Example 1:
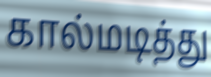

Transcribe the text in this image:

கால்மடித்து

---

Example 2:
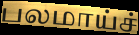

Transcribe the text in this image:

பலமாய்ச்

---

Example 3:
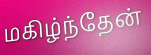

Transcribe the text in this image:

மகிழ்ந்தேன்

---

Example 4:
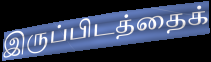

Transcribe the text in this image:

இருப்பிடத்தைக்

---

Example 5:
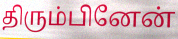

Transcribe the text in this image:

திரும்பினேன்